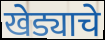
खेड्याचे